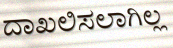
ದಾಖಲಿಸಲಾಗಿಲ್ಲ